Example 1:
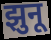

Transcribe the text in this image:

झुनू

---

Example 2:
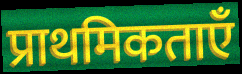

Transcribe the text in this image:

प्राथमिकताएँ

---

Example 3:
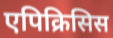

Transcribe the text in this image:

एपिक्रिसिस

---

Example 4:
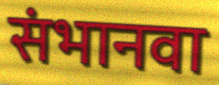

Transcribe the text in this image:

संभानवा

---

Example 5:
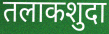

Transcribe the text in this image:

तलाकशुदा